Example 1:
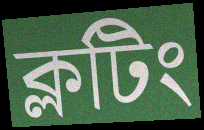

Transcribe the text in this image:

ক্লটিং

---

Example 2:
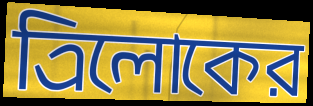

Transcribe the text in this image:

ত্রিলোকের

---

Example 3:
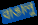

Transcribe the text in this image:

বাঙালু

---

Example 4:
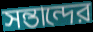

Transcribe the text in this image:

সন্তান্দের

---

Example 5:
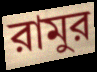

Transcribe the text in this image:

রামুর